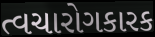
ત્વચારોગકારક